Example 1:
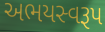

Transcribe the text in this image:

અભયસ્વરૂપ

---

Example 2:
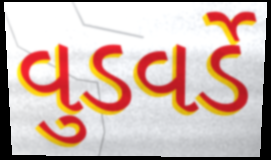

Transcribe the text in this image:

વુડવર્ડે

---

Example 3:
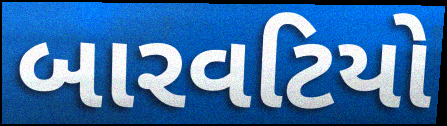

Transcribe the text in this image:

બારવટિયો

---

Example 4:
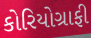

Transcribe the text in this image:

કોરિયોગ્રાફી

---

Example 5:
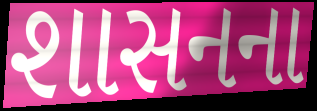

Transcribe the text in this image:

શાસનના